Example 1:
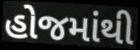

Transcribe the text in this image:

હોજમાંથી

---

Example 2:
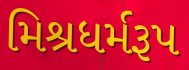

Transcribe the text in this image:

મિશ્રધર્મરૂપ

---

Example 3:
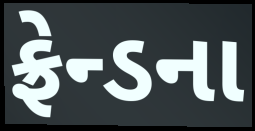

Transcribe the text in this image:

ફ્રેન્ડના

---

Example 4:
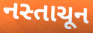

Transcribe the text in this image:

નસ્તાચૂન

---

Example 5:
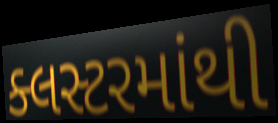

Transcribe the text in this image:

ક્લસ્ટરમાંથી